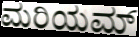
ಮರಿಯಮ್